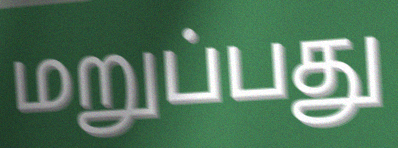
மறுப்பது